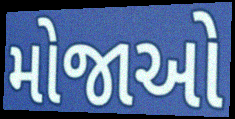
મોજાઓ